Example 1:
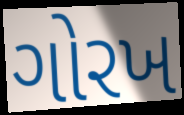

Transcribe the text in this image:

ગોરખ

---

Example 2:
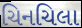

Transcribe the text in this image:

ચિનચિલા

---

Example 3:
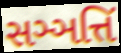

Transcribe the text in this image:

સઞ્ઞત્તિં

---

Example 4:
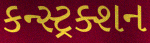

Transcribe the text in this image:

કન્સ્ટ્રક્શન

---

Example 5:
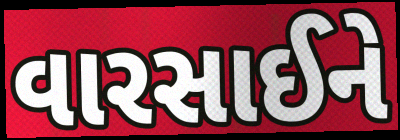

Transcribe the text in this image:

વારસાઈને